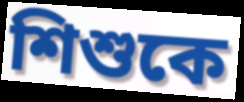
শিশুকে